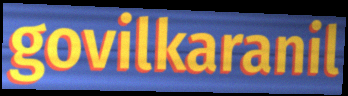
govilkaranil